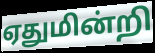
ஏதுமின்றி